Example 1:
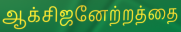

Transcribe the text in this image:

ஆக்சிஜனேற்றத்தை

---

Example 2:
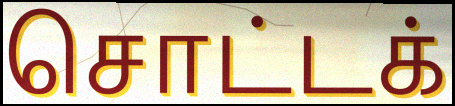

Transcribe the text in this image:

சொட்டக்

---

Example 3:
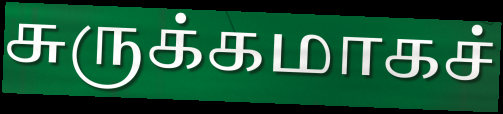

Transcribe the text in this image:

சுருக்கமாகச்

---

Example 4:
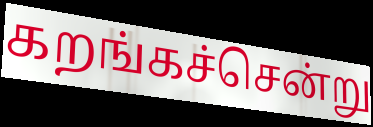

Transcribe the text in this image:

கறங்கச்சென்று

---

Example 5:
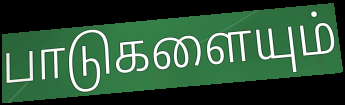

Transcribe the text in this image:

பாடுகளையும்